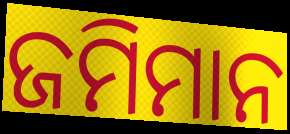
ଜମିମାନ